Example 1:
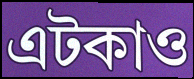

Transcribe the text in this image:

এটকাও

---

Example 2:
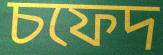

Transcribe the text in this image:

চফেদ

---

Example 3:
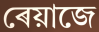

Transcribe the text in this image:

ৰেয়াজে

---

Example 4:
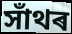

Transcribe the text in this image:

সাঁথৰ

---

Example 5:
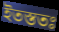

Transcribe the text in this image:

ইতস্ততঃ